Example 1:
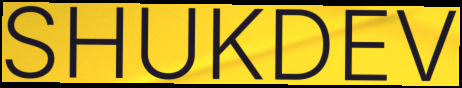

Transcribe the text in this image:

SHUKDEV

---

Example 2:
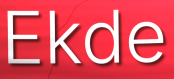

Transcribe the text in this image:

Ekde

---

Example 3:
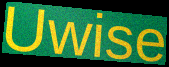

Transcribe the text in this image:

Uwise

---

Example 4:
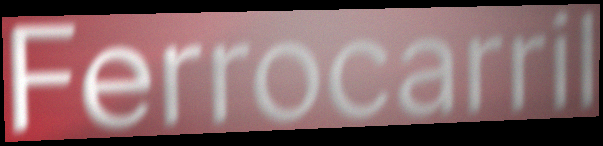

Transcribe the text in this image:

Ferrocarril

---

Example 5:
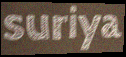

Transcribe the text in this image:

suriya